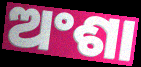
ଅଂଶା